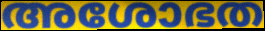
അശോഭത